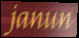
janun